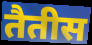
तैतीस